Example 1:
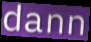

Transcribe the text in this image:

dann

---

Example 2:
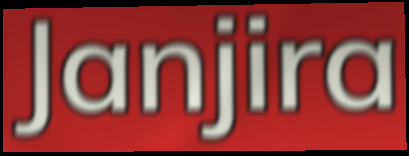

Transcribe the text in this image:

Janjira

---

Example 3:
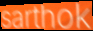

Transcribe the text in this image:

sarthok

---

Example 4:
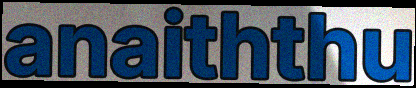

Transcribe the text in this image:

anaiththu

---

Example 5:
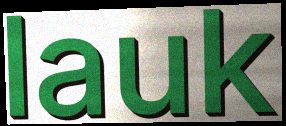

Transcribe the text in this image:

lauk